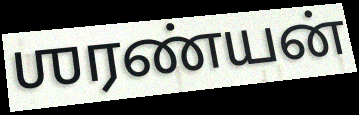
ஶரண்யன்